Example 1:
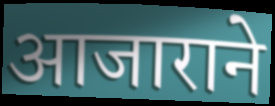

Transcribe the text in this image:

आजाराने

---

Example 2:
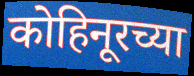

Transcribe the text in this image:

कोहिनूरच्या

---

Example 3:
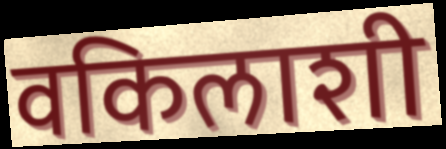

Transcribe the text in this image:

वकिलाशी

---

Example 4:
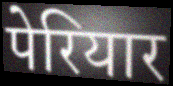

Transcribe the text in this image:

पेरियार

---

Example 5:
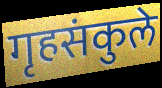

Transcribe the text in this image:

गृहसंकुले